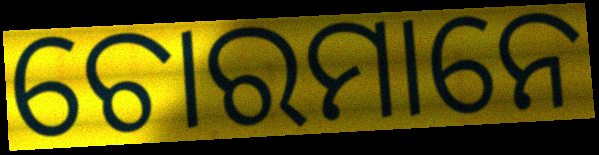
ଚୋରମାନେ